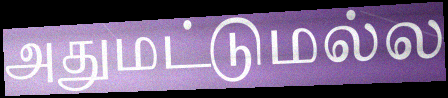
அதுமட்டுமல்ல